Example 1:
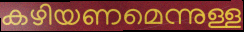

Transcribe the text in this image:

കഴിയണമെന്നുള്ള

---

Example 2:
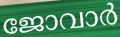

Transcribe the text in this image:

ജോവാർ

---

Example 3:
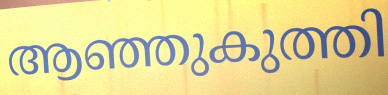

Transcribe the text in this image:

ആഞ്ഞുകുത്തി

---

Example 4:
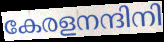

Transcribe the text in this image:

കേരളനന്ദിനി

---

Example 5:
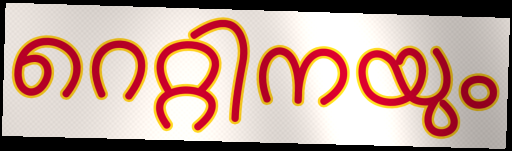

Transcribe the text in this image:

റെറ്റിനയും